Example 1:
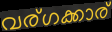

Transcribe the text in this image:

വര്ഗക്കാര്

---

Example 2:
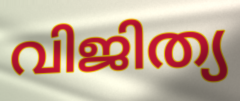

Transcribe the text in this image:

വിജിത്യ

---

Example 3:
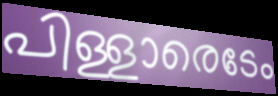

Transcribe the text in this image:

പിള്ളാരെടേം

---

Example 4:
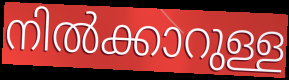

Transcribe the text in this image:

നിൽക്കാറുള്ള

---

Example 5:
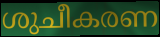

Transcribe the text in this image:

ശുചീകരണ